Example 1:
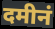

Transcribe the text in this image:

दमीनं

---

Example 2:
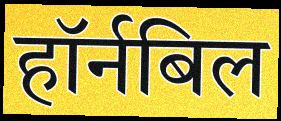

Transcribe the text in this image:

हॉर्नबिल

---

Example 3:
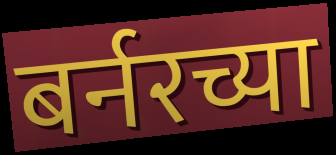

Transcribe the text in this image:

बर्नरच्या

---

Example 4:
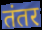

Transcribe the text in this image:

तंतर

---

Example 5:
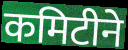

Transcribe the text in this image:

कमिटीने